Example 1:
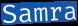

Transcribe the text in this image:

Samra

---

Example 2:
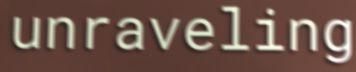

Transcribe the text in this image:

unraveling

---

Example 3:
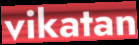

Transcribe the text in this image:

vikatan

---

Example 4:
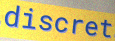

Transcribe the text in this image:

discret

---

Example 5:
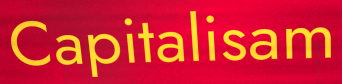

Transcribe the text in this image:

Capitalisam